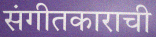
संगीतकाराची